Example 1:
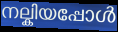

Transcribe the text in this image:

നല്കിയപ്പോൾ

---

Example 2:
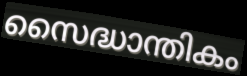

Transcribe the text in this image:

സൈദ്ധാന്തികം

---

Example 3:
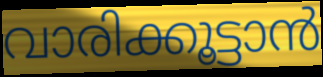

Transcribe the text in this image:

വാരിക്കൂട്ടാൻ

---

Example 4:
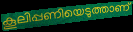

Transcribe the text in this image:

കൂലിപ്പണിയെടുത്താണ്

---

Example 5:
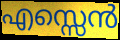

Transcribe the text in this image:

എസ്സെൻ